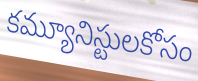
కమ్యూనిస్టులకోసం